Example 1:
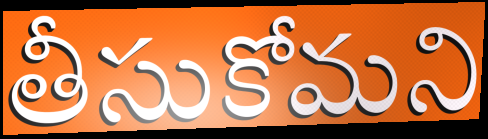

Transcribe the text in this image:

తీసుకోమని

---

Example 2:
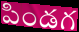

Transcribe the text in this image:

పిండగ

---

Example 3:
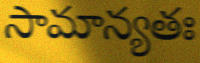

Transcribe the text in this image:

సామాన్యతః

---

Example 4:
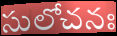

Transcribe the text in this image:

సులోచనః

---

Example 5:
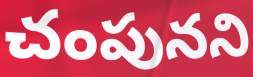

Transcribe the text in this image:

చంపునని